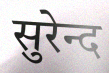
सुरेन्द